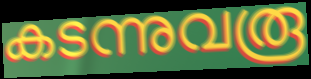
കടന്നുവരൂ